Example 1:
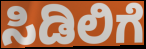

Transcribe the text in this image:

ಸಿಡಿಲಿಗೆ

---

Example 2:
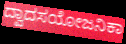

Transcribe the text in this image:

ದ್ವಾದಸಯೋಜನಿಕಾ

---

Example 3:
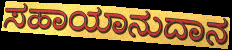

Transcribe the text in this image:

ಸಹಾಯಾನುದಾನ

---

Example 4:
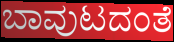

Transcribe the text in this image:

ಬಾವುಟದಂತೆ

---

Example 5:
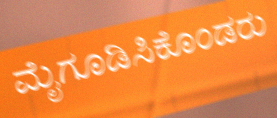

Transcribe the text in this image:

ಮೈಗೂಡಿಸಿಕೊಂಡರು